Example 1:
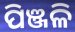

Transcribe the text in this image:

ପିଞ୍ଜଳି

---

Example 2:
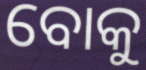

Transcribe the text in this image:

ବୋକୁ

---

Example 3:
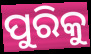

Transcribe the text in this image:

ପୁରିକୁ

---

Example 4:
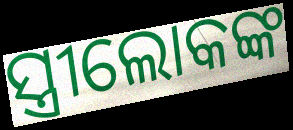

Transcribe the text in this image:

ସ୍ତ୍ରୀଲୋକଙ୍କ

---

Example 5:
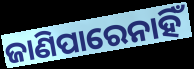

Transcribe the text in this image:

ଜାଣିପାରେନାହିଁ